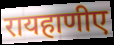
रायहाणीए